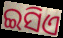
ଇସିଏ